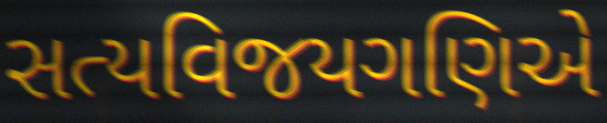
સત્યવિજયગણિએ